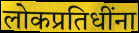
लोकप्रतिधींना